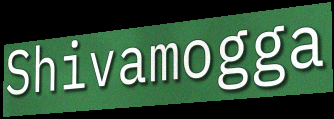
Shivamogga